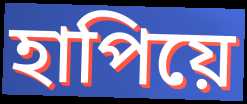
হাপিয়ে